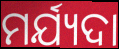
ମର୍ଯ୍ୟଦା